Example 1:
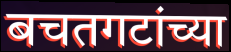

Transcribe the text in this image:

बचतगटांच्या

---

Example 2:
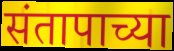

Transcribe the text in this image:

संतापाच्या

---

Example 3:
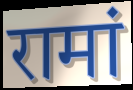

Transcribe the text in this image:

रामां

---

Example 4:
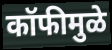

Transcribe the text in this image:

कॉफीमुळे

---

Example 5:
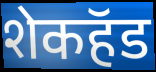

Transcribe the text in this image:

शेकहॅड